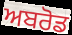
ਅਬਰੋਡ